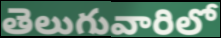
తెలుగువారిలో